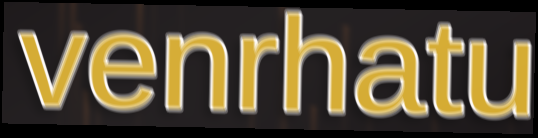
venrhatu